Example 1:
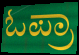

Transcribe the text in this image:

ಓಪ್ರಾ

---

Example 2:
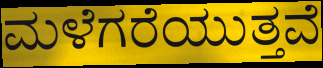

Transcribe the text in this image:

ಮಳೆಗರೆಯುತ್ತವೆ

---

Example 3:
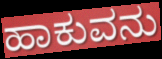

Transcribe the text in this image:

ಹಾಕುವನು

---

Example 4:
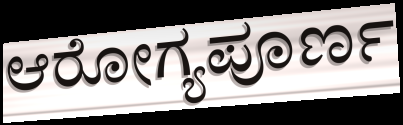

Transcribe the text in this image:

ಆರೋಗ್ಯಪೂರ್ಣ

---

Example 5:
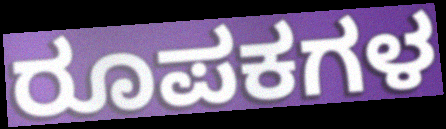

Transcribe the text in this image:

ರೂಪಕಗಳ